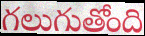
గలుగుతోంది